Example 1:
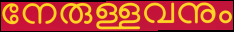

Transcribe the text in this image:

നേരുള്ളവനും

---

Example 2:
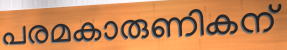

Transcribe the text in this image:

പരമകാരുണികന്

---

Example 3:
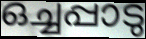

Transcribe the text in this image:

ഒച്ചപ്പാടു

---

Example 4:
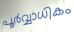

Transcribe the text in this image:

പൂർവ്വാധികം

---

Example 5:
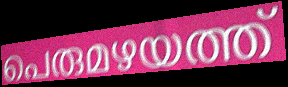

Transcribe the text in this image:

പെരുമഴയത്ത്